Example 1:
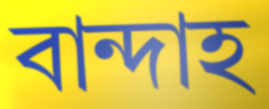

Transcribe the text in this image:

বান্দাহ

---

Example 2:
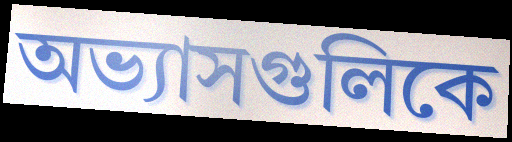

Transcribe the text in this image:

অভ্যাসগুলিকে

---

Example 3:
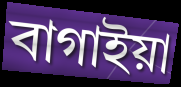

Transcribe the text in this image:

বাগাইয়া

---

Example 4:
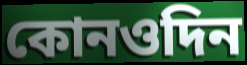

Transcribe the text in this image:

কোনওদিন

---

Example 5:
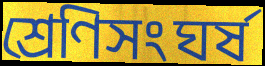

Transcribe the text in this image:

শ্রেণিসংঘর্ষ